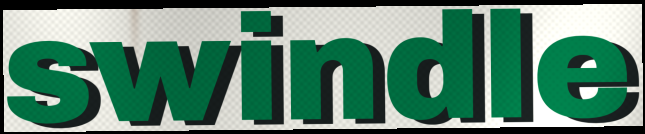
swindle